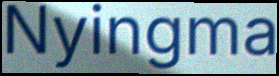
Nyingma